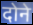
दोने